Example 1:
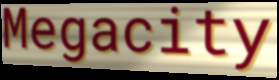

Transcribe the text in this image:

Megacity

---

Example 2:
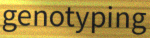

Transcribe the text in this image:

genotyping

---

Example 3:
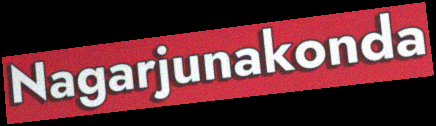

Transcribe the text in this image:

Nagarjunakonda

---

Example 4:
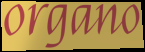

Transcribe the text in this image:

organo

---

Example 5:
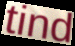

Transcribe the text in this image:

tind